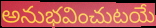
అనుభవించుటయే